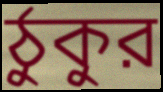
ঠুকুর